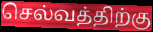
செல்வத்திற்கு